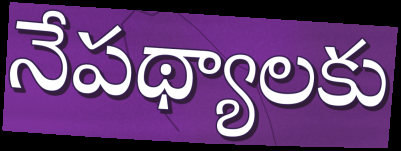
నేపథ్యాలకు